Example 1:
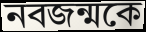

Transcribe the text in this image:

নবজন্মকে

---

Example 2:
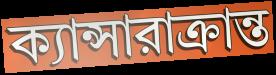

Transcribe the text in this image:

ক্যান্সারাক্রান্ত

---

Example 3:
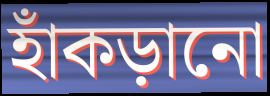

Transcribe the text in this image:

হাঁকড়ানো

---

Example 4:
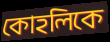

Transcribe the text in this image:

কোহলিকে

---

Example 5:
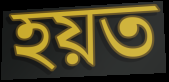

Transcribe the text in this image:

হয়ত